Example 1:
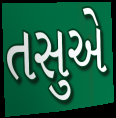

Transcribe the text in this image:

તસુએ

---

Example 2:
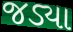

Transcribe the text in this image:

જડ્યા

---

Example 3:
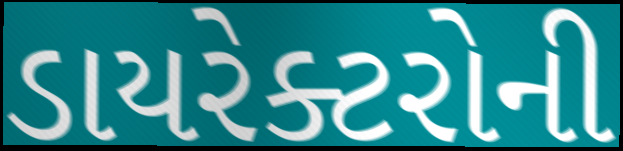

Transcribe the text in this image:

ડાયરેક્ટરોની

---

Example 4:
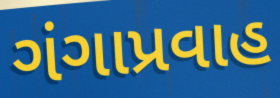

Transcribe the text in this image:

ગંગાપ્રવાહ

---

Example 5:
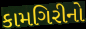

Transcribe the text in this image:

કામગિરીનો